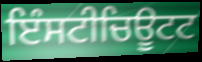
ਇੰਸਟੀਚਿਊਟਟ